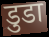
डुडा